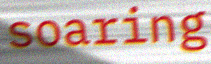
soaring